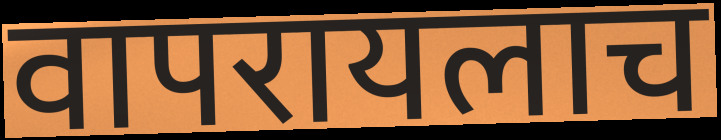
वापरायलाच